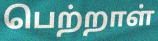
பெற்றாள்